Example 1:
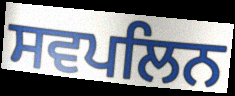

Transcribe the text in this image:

ਸਵਪਲਿਨ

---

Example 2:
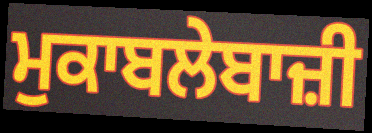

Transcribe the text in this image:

ਮੁਕਾਬਲੇਬਾਜ਼ੀ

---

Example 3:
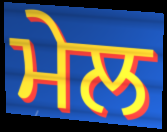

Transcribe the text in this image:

ਮੇਲ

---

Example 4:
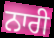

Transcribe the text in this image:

ਨਾਰੀ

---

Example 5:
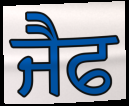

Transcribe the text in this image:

ਜੈਫ